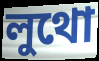
লুথো